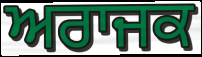
ਅਰਾਜਕ